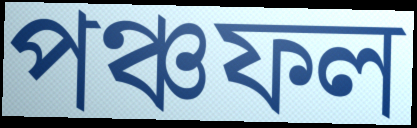
পঞ্চফল